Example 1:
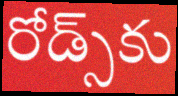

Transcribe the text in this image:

రోడ్స్‌కు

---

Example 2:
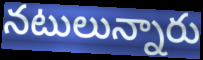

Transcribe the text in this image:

నటులున్నారు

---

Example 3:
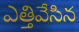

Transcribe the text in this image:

ఎత్తివేసిన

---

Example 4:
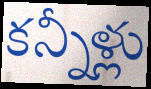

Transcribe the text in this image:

కన్నీళ్లు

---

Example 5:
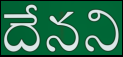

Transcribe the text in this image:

దేనని